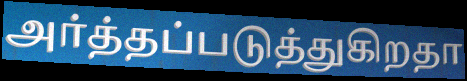
அர்த்தப்படுத்துகிறதா